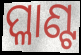
ପ୍ଳାଣ୍ଟ